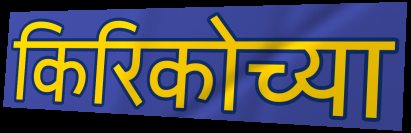
किरिकोच्या